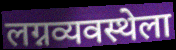
लग्नव्यवस्थेला